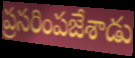
ప్రసరింపజేశాడు